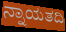
ನ್ನಾಯತದಿ